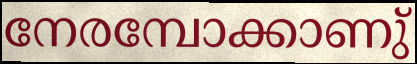
നേരമ്പോക്കാണു്